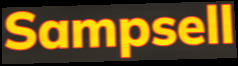
Sampsell